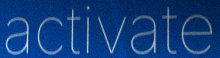
activate